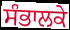
ਸੰਭਾਲਕੇ